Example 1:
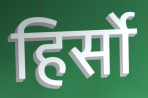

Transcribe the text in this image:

हिर्सो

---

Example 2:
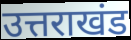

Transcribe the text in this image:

उत्तराखंड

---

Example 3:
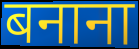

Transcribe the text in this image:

बनाना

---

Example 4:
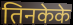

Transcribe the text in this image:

तिनकेके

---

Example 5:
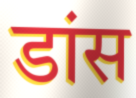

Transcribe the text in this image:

डांस